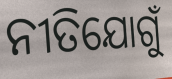
ନୀତିଯୋଗୁଁ